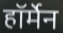
हॉर्मेन